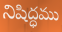
నిషిద్ధము